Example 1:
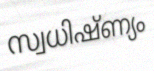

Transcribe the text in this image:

സ്വധിഷ്ണ്യം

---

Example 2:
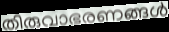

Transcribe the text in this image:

തിരുവാഭരണങ്ങൾ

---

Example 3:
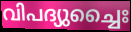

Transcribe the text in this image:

വിപദ്യുച്ചൈഃ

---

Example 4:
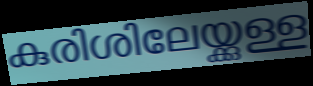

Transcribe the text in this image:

കുരിശിലേയ്ക്കുള്ള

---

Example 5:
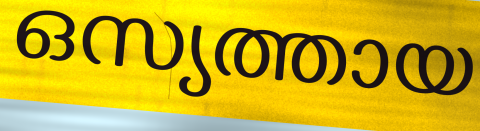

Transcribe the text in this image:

ഒസ്യത്തായ